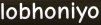
lobhoniyo